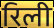
रिली